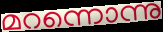
മറന്നൊന്നു